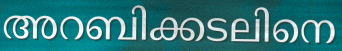
അറബിക്കടലിനെ